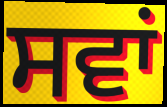
ਸਵਾਂ